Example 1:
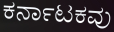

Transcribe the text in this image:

ಕರ್ನಾಟಕವು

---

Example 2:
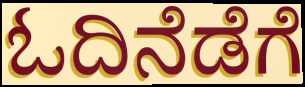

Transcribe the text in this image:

ಓದಿನೆಡೆಗೆ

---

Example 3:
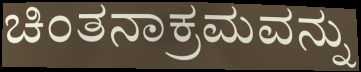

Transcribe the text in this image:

ಚಿಂತನಾಕ್ರಮವನ್ನು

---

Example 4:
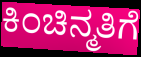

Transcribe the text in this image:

ಕಿಂಚಿನ್ಮತಿಗೆ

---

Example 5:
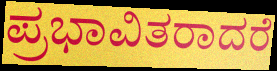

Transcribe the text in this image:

ಪ್ರಭಾವಿತರಾದರೆ